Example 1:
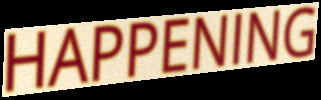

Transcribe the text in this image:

HAPPENING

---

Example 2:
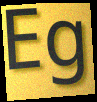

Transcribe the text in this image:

Eg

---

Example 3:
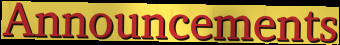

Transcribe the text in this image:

Announcements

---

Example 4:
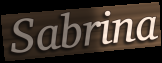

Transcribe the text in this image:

Sabrina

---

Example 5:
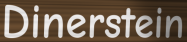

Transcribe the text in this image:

Dinerstein